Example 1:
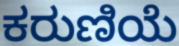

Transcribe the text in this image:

ಕರುಣಿಯೆ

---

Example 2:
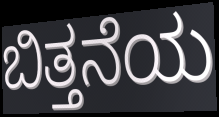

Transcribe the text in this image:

ಬಿತ್ತನೆಯ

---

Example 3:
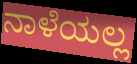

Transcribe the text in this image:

ನಾಳೆಯಲ್ಲ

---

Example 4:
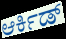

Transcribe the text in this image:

ಆರ್ಕಿಡ್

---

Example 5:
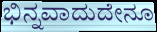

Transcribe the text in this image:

ಭಿನ್ನವಾದುದೇನೂ